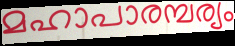
മഹാപാരമ്പര്യം